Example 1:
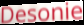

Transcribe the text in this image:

Desonie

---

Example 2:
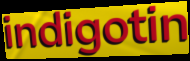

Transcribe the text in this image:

indigotin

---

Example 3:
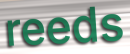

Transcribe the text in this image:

reeds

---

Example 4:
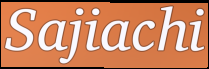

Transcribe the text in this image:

Sajiachi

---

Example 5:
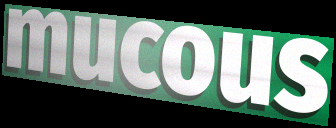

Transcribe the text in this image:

mucous